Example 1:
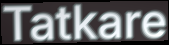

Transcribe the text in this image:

Tatkare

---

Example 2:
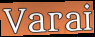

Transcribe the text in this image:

Varai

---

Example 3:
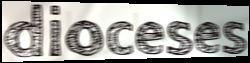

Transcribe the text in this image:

dioceses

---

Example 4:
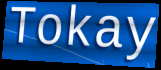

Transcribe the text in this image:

Tokay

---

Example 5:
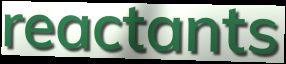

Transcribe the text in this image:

reactants